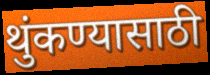
थुंकण्यासाठी